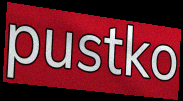
pustko